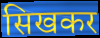
सिखकर